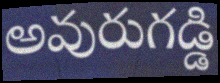
అవురుగడ్డి